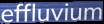
effluvium